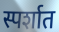
स्पर्शात